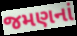
જમણનાં